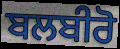
ਬਲਬੀਰੋ